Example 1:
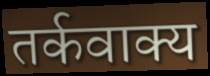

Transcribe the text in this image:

तर्कवाक्य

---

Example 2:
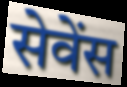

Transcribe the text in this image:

सेवेंस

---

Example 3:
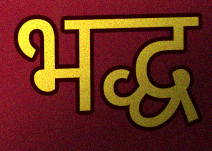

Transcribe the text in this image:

भद्ध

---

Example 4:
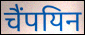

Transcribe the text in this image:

चैंपयिन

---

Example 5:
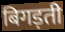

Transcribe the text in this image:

बिगड़ती